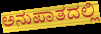
ಅನುಪಾತದಲ್ಲಿ